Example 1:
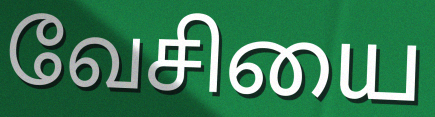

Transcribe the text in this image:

வேசியை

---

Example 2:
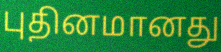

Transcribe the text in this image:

புதினமானது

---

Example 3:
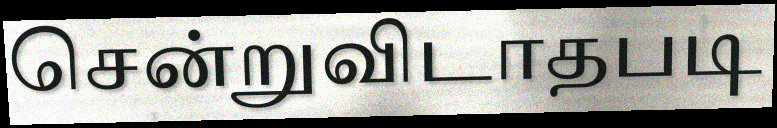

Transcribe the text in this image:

சென்றுவிடாதபடி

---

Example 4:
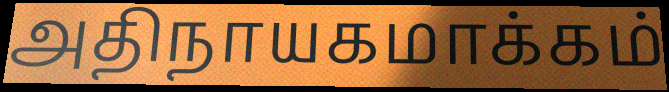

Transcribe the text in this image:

அதிநாயகமாக்கம்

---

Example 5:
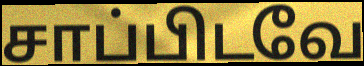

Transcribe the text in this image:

சாப்பிடவே